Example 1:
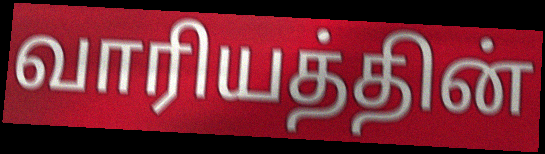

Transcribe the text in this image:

வாரியத்தின்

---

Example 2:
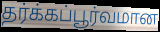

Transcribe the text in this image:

தர்க்கப்பூர்வமான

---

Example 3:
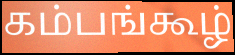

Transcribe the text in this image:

கம்பங்கூழ்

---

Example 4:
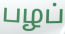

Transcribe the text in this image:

பழப்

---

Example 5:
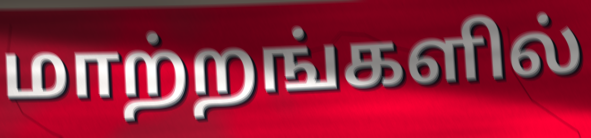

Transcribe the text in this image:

மாற்றங்களில்